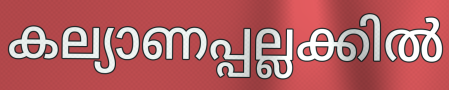
കല്യാണപ്പല്ലക്കിൽ